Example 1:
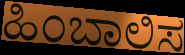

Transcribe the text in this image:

ಹಿಂಬಾಲಿಸ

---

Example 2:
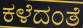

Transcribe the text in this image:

ಕಳೆದಂತೆ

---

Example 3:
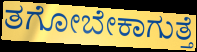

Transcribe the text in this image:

ತಗೋಬೇಕಾಗುತ್ತೆ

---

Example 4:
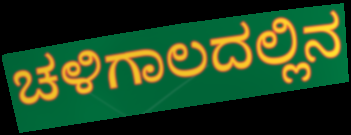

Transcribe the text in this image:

ಚಳಿಗಾಲದಲ್ಲಿನ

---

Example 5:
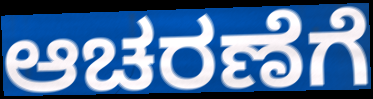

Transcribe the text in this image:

ಆಚರಣೆಗೆ